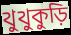
থুথুকুড়ি